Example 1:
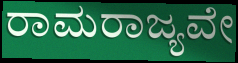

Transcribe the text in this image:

ರಾಮರಾಜ್ಯವೇ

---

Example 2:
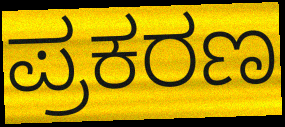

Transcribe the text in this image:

ಪ್ರಕರಣ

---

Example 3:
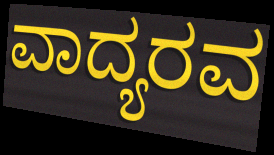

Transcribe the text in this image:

ವಾದ್ಯರವ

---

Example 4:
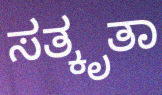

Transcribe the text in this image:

ಸತ್ಕೃತಾ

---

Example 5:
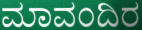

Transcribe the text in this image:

ಮಾವಂದಿರ